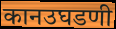
कानउघडणी